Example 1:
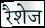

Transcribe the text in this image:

रैशेज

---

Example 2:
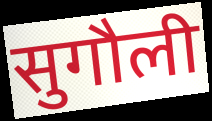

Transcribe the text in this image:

सुगौली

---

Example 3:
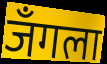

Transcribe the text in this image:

जँगला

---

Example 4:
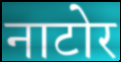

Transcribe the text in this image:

नाटोर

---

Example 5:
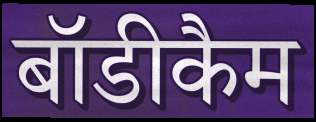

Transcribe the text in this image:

बॉडीकैम